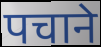
पचाने